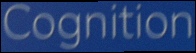
Cognition